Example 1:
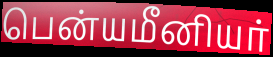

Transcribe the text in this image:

பென்யமீனியர்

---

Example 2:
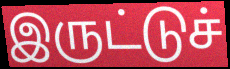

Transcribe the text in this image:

இருட்டுச்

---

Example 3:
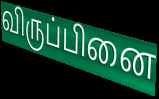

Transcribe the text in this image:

விருப்பினை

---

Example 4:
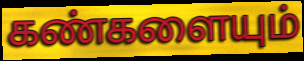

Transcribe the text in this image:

கண்களையும்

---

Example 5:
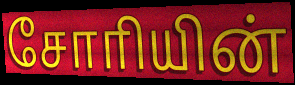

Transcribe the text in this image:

சோரியின்